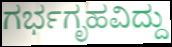
ಗರ್ಭಗೃಹವಿದ್ದು